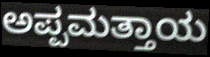
ಅಪ್ಪಮತ್ತಾಯ